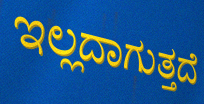
ಇಲ್ಲದಾಗುತ್ತದೆ